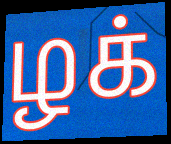
ழக்